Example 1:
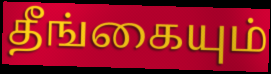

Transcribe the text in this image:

தீங்கையும்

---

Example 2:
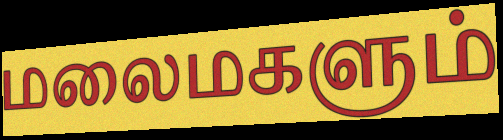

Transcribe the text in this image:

மலைமகளும்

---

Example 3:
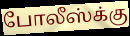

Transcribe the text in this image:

போலீஸ்க்கு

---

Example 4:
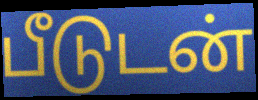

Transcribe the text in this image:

பீடுடன்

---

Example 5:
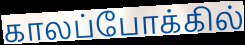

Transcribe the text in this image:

காலப்போக்கில்